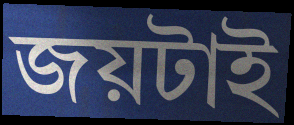
জয়টাই